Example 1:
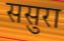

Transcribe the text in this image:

ससुरा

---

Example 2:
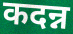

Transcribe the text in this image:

कदन्न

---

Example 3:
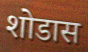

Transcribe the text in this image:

शोडास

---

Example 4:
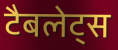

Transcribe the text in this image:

टैबलेट्स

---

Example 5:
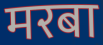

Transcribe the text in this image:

मरबा